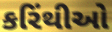
કરિંથીઓ